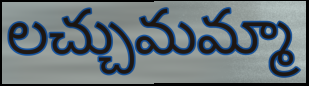
లచ్చుమమ్మా